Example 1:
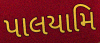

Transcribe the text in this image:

પાલયામિ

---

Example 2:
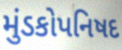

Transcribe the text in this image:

મુંડકોપનિષદ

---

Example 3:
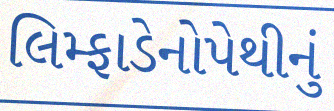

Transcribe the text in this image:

લિમ્ફાડેનોપેથીનું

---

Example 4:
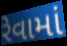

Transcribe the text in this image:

રેવામાં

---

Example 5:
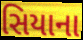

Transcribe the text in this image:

સિયાના